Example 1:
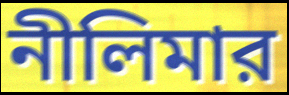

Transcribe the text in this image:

নীলিমার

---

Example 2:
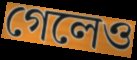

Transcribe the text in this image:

গেলেও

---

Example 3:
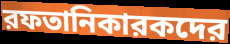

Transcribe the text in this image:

রফতানিকারকদের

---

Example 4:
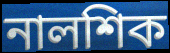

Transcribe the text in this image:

নালশিক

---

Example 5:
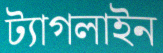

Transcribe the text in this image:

ট্যাগলাইন